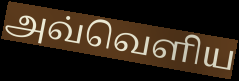
அவ்வெளிய